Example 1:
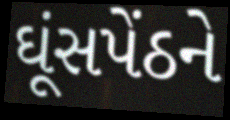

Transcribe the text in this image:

ઘૂંસપેંઠને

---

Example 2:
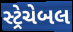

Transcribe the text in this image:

સ્ટ્રેચેબલ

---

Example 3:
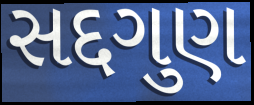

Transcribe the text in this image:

સદ્દગુણ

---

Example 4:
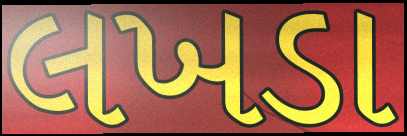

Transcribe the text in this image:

લખડા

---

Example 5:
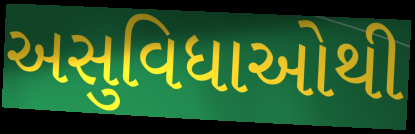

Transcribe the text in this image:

અસુવિધાઓથી